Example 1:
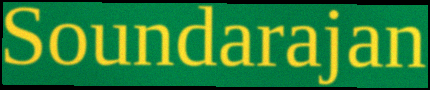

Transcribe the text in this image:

Soundarajan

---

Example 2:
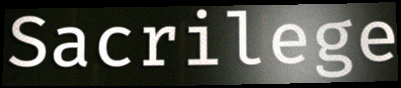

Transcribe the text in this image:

Sacrilege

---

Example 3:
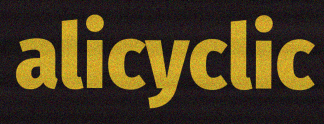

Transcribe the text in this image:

alicyclic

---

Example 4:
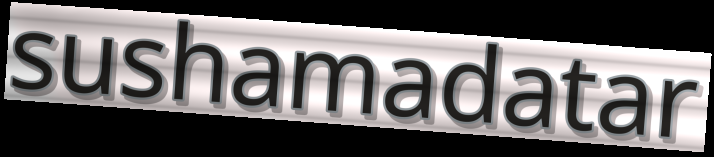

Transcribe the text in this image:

sushamadatar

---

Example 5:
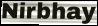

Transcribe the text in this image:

Nirbhay